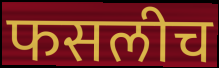
फसलीच